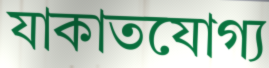
যাকাতযোগ্য